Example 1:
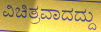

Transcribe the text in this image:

ವಿಚಿತ್ರವಾದದ್ದು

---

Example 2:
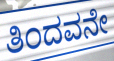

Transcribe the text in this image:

ತಿಂದವನೇ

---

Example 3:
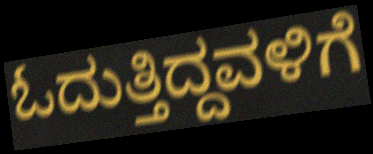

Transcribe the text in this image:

ಓದುತ್ತಿದ್ದವಳಿಗೆ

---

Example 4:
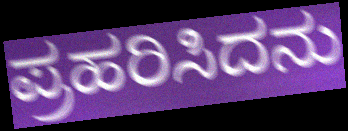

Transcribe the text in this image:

ಪ್ರಹರಿಸಿದನು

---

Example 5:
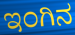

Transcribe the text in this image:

ಇಂಗಿನ